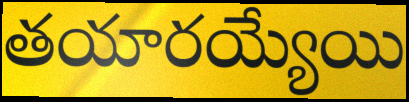
తయారయ్యేయి